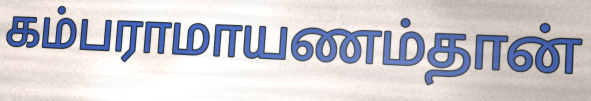
கம்பராமாயணம்தான்